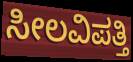
ಸೀಲವಿಪತ್ತಿ